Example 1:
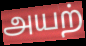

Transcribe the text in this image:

அயற்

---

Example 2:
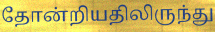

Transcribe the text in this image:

தோன்றியதிலிருந்து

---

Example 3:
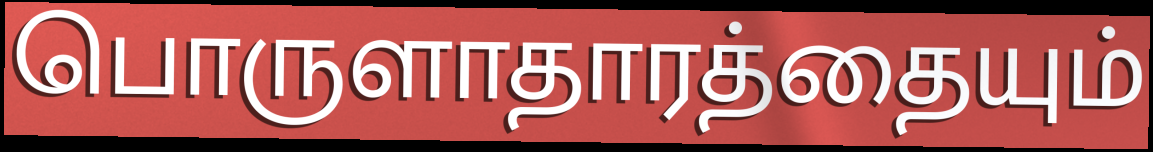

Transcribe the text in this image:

பொருளாதாரத்தையும்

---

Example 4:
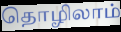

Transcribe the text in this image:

தொழிலாம்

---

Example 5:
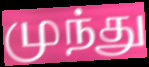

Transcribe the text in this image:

முந்து